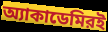
অ্যাকাডেমিরই